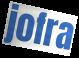
jofra